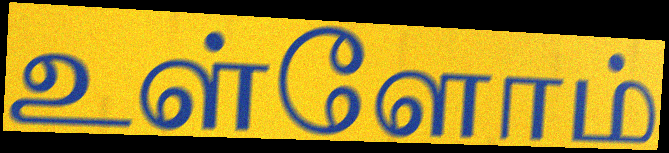
உள்ளோம்